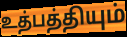
உத்பத்தியும்